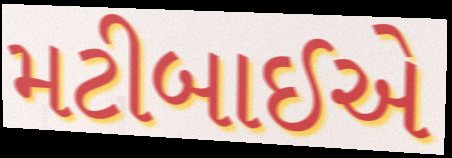
મટીબાઈએ